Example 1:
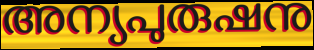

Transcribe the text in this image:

അന്യപുരുഷനു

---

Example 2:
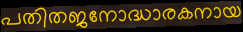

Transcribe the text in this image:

പതിതജനോദ്ധാരകനായ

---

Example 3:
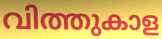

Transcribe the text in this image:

വിത്തുകാള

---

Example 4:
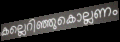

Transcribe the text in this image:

കല്ലെറിഞ്ഞുകൊല്ലണം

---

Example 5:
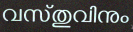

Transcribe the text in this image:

വസ്‌തുവിനും